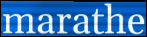
marathe